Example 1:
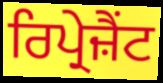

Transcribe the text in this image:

ਰਿਪ੍ਰੇਜ਼ੈਂਟ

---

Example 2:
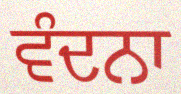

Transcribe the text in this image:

ਵੰਦਨਾ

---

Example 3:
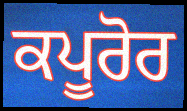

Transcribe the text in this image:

ਕਪੂਰੋਰ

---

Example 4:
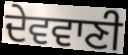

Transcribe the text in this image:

ਦੇਵਵਾਣੀ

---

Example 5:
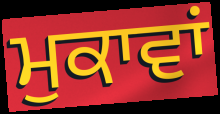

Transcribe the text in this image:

ਮੁਕਾਵਾਂ